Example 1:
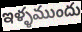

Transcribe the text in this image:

ఇళ్ళముందు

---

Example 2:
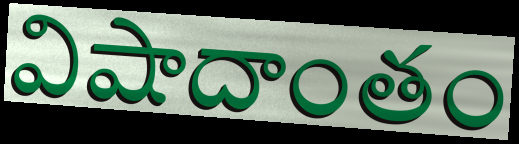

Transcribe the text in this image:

విషాదాంతం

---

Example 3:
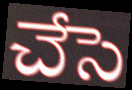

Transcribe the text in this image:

చేసె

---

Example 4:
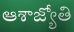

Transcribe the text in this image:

ఆశాజ్యోతి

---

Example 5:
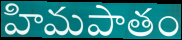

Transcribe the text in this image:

హిమపాతం